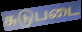
சுடுபடை